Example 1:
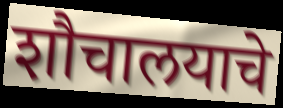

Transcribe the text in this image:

शौचालयाचे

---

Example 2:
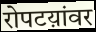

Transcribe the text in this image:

रोपटय़ांवर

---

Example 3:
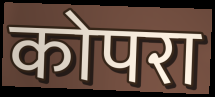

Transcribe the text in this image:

कोपरा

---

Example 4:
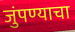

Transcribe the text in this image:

जुंपण्याचा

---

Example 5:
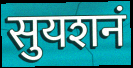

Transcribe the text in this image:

सुयशनं